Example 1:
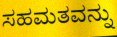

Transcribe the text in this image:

ಸಹಮತವನ್ನು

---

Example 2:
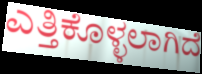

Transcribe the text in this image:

ಎತ್ತಿಕೊಳ್ಳಲಾಗಿದೆ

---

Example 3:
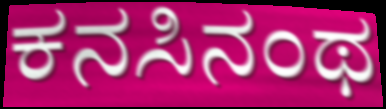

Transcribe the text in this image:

ಕನಸಿನಂಥ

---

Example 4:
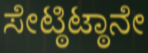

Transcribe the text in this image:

ಸೇಟ್ಠಿಟ್ಠಾನೇ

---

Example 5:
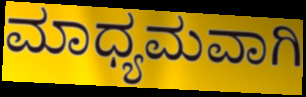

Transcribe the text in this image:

ಮಾಧ್ಯಮವಾಗಿ